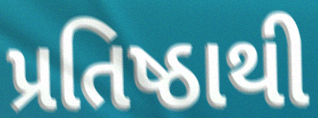
પ્રતિષ્ઠાથી